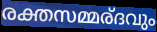
രക്തസമ്മര്ദവും